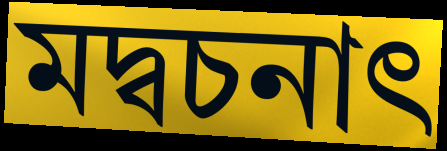
মদ্বচনাৎ